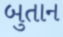
બુતાન